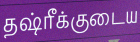
தஷ்ரீக்குடைய